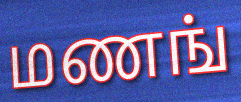
மணங்